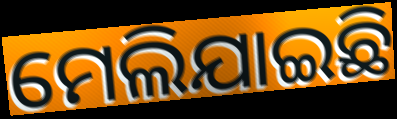
ମେଲିଯାଇଛି